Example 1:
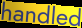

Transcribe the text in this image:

handled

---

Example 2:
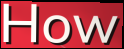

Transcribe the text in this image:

How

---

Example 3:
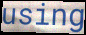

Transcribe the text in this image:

using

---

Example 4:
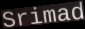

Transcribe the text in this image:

Srimad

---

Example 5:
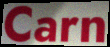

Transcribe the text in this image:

Carn